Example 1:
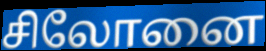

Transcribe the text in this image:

சிலோனை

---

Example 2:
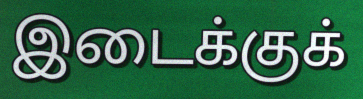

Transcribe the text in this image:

இடைக்குக்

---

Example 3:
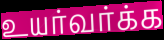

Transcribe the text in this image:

உயர்வர்க்க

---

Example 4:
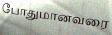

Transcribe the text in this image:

போதுமானவரை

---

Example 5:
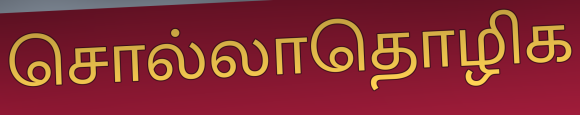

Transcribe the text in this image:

சொல்லாதொழிக